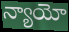
న్యాయో